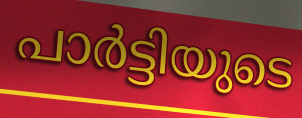
പാർട്ടിയുടെ